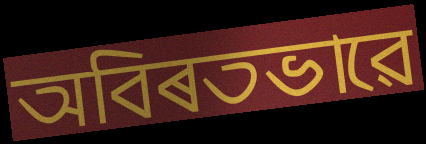
অবিৰতভাৱে